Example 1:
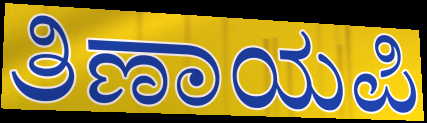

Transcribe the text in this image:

ತಿಣಾಯಪಿ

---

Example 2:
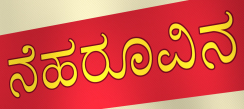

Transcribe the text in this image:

ನೆಹರೂವಿನ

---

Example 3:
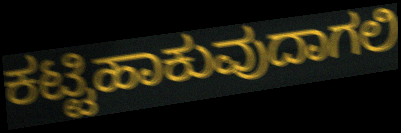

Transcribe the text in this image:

ಕಟ್ಟಿಹಾಕುವುದಾಗಲಿ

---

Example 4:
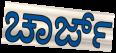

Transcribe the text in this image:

ಚಾರ್ಜ್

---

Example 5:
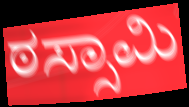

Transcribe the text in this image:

ಠಸ್ಸಾಮಿ